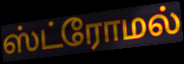
ஸ்ட்ரோமல்